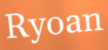
Ryoan